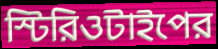
স্টিরিওটাইপের